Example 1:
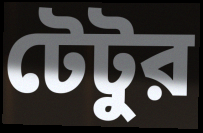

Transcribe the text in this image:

টেটুর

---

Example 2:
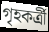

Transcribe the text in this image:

গৃহকর্ত্রী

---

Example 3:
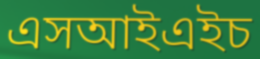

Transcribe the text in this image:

এসআইএইচ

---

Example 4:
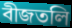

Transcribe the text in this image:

বীজতলি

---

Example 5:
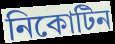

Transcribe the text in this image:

নিকোটিন